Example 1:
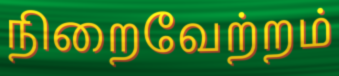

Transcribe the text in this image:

நிறைவேற்றம்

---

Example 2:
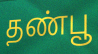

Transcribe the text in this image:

தண்பூ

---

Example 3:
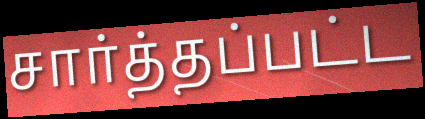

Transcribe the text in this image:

சார்த்தப்பட்ட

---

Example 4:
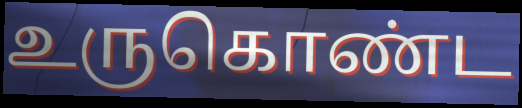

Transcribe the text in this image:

உருகொண்ட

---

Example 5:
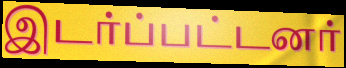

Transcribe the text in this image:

இடர்ப்பட்டனர்